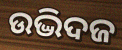
ଉଦ୍ଭିଦଜ